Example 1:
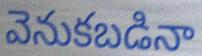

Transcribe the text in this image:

వెనుకబడినా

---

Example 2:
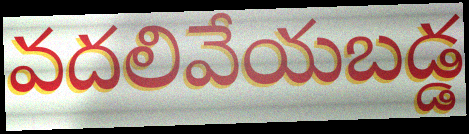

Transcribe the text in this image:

వదలివేయబడ్డ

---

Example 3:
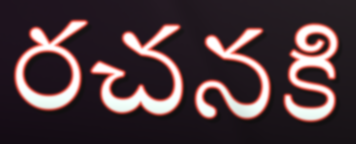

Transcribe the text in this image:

రచనకి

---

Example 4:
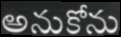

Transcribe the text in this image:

అనుకోను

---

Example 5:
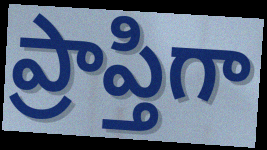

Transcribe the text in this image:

ప్రాప్తిగా